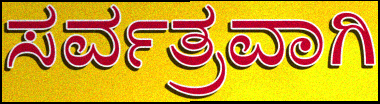
ಸರ್ವತ್ರವಾಗಿ